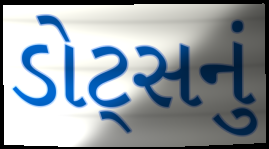
ડોટ્સનું